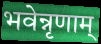
भवेन्नृणाम्